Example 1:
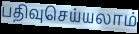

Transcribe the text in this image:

பதிவுசெய்யலாம்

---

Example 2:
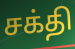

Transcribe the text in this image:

சக்தி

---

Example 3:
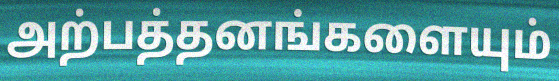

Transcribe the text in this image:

அற்பத்தனங்களையும்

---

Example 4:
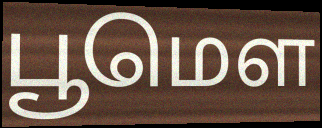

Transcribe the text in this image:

பூமௌ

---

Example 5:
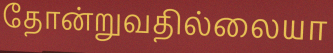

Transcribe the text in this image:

தோன்றுவதில்லையா